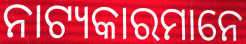
ନାଟ୍ୟକାରମାନେ